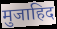
मुजाहिद